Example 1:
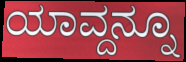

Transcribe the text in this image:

ಯಾವ್ದನ್ನೂ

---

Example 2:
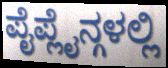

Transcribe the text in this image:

ಪೈಪ್ಲೈನ್ಗಳಲ್ಲಿ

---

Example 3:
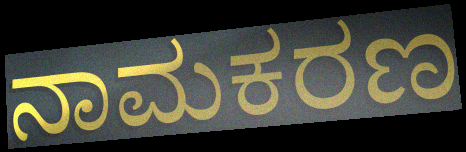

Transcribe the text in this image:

ನಾಮಕರಣ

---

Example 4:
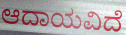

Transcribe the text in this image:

ಆದಾಯವಿದೆ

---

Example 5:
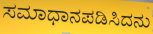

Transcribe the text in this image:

ಸಮಾಧಾನಪಡಿಸಿದನು